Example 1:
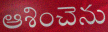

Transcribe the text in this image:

ఆశించెను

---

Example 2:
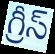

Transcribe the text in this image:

గ్రీస్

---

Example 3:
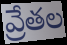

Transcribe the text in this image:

వ్రేతల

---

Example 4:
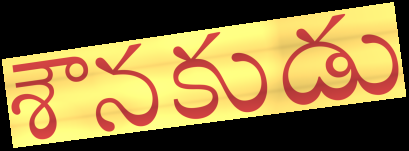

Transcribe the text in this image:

శౌనకుడు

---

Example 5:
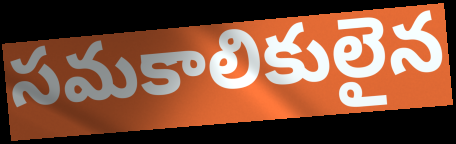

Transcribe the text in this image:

సమకాలికులైన